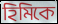
হিমিকে